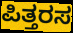
ಪಿತ್ತರಸ